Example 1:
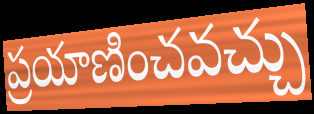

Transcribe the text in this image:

ప్రయాణించవచ్చు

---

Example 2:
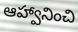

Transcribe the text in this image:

ఆహ్వానించి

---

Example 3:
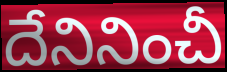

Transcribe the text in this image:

దేనినించీ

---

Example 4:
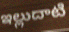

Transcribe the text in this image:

ఇల్లుదాటి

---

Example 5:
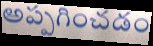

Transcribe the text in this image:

అప్పగించడం